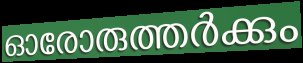
ഓരോരുത്തർക്കും